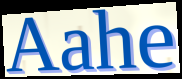
Aahe